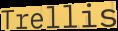
Trellis